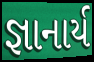
જ્ઞાનાર્ય